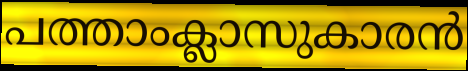
പത്താംക്ലാസുകാരൻ